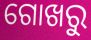
ଗୋଖରୁ